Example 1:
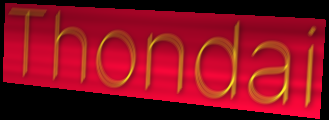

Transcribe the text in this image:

Thondai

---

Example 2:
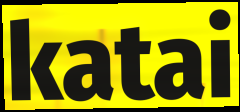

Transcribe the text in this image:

katai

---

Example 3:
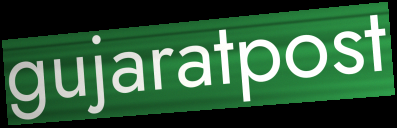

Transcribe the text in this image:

gujaratpost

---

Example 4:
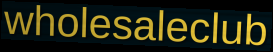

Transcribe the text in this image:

wholesaleclub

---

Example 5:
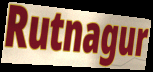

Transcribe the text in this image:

Rutnagur